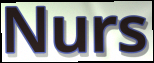
Nurs